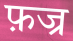
फ़ज्र